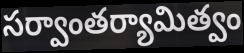
సర్వాంతర్యామిత్వం